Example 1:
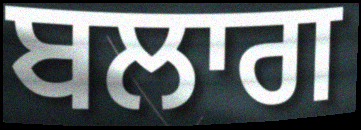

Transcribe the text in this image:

ਬਲਾਗ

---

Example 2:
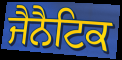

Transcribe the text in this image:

ਜੈਨੈਟਿਕ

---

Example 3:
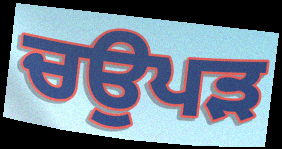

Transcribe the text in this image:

ਚਉਪੜ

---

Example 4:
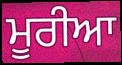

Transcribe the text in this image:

ਮੂਰੀਆ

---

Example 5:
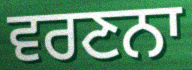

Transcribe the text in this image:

ਵਰਣਨਾ